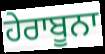
ਹੇਰਾਬੂਨਾ